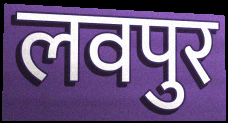
लवपुर